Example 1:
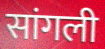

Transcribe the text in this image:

सांगली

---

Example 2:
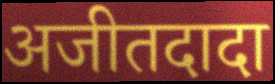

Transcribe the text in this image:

अजीतदादा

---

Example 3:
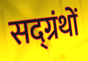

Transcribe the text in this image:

सद्ग्रंथों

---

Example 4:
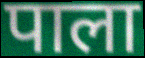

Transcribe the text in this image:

पाला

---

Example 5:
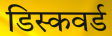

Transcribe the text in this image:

डिस्कवर्ड